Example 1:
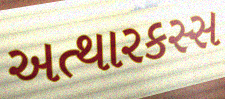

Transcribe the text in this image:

અત્થારકસ્સ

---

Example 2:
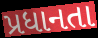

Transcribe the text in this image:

પ્રધાનતા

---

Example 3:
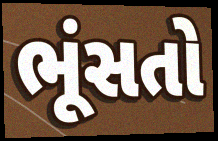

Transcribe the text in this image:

ભૂંસતો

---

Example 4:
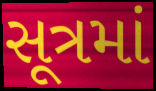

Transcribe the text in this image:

સૂત્રમાં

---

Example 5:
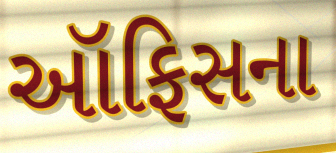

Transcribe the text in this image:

ઑફિસના